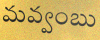
మవ్వంబు